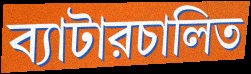
ব্যাটারচালিত